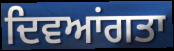
ਦਿਵਆਂਗਤਾ